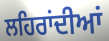
ਲਹਿਰਾਂਦੀਆਂ